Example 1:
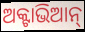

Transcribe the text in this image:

ଅକ୍ଟାଭିଆନ୍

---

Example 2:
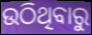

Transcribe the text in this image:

ଉଠିଥିବାରୁ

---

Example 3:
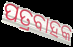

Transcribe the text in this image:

ପତ୍ରବାହକ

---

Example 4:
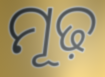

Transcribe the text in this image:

ମୂଢ଼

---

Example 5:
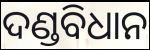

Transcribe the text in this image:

ଦଣ୍ଡବିଧାନ